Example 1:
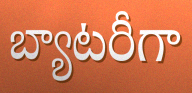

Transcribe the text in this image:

బ్యాటరీగా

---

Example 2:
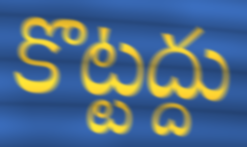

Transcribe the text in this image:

కొట్టద్దు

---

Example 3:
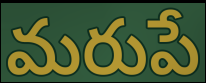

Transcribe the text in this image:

మరుపే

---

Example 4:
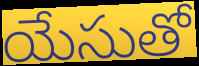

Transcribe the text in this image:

యేసుతో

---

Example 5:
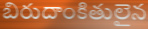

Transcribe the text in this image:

బిరుదాంకితులైన